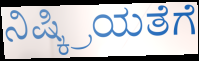
ನಿಷ್ಕ್ರಿಯತೆಗೆ